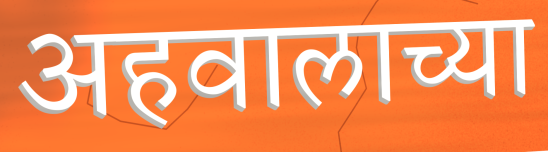
अहवालाच्या